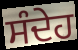
ਸੰਦੇਹ